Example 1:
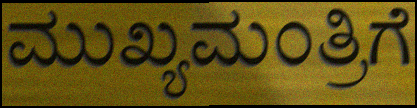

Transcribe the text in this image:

ಮುಖ್ಯಮಂತ್ರಿಗೆ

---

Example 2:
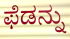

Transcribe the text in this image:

ಫೆಡನ್ನು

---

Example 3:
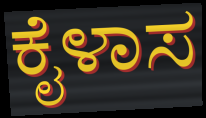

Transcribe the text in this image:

ಕೈಳಾಸ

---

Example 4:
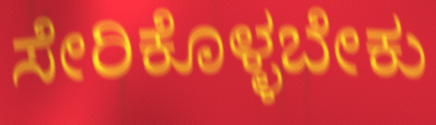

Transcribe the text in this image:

ಸೇರಿಕೊಳ್ಳಬೇಕು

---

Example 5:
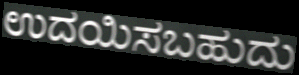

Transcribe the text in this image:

ಉದಯಿಸಬಹುದು